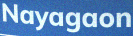
Nayagaon